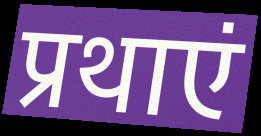
प्रथाएं